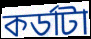
কর্ডাটা